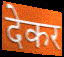
देकर